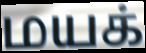
மயக்